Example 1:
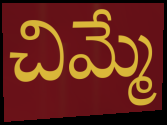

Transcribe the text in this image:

చిమ్మే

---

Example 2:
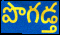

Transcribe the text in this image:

పొగడ్త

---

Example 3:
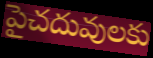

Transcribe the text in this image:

పైచదువులకు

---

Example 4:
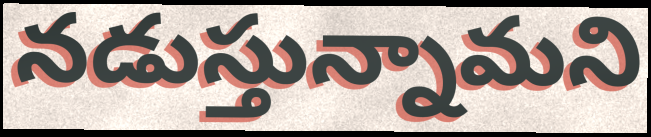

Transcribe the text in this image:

నడుస్తున్నామని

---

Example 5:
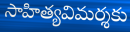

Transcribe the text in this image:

సాహిత్యవిమర్శకు